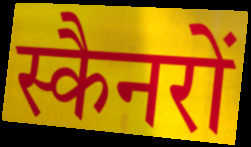
स्कैनरों